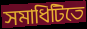
সমাধিটিতে